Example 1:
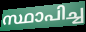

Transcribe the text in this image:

സ്ഥാപിച്ച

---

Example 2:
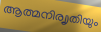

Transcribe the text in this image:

ആത്മനിര്വൃതിയും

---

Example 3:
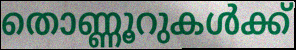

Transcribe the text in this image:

തൊണ്ണൂറുകൾക്ക്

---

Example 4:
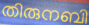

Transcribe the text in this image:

തിരുനബി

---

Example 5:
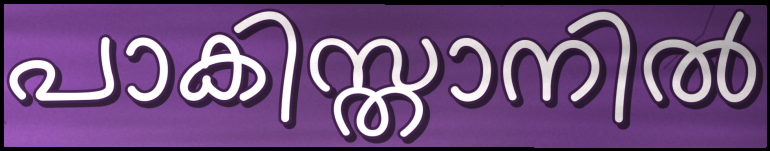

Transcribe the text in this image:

പാകിസ്താനിൽ